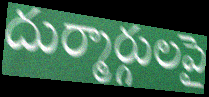
దుర్మార్గులపై